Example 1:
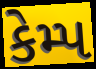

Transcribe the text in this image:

કેમ્પ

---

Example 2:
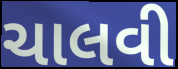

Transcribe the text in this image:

ચાલવી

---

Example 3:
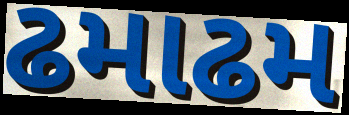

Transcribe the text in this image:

ઢમાઢમ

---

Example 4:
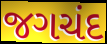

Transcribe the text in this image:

જગચંદ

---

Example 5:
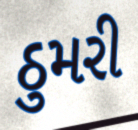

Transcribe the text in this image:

ઠુમરી